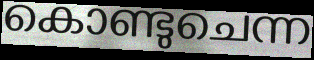
കൊണ്ടുചെന്ന